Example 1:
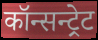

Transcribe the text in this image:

कॉन्सन्ट्रेट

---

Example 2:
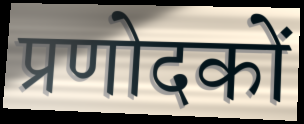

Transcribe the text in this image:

प्रणोदकों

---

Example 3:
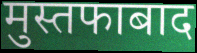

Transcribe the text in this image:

मुस्तफाबाद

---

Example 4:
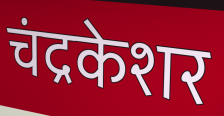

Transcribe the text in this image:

चंद्रकेशर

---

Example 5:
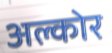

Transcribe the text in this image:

अल्कोर